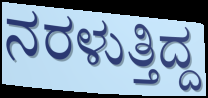
ನರಳುತ್ತಿದ್ದ